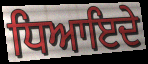
ਧਿਆਇਦੇ